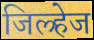
जिल्हेज